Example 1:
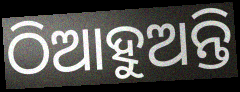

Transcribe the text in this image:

ଠିଆହୁଅନ୍ତି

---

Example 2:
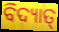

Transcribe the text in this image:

ବିଦ୍ୟାତ୍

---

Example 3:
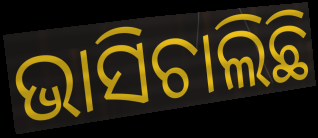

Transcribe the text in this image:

ଭାସିଚାଲିଛି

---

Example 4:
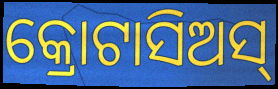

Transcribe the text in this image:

କ୍ରୋଟାସିଅସ୍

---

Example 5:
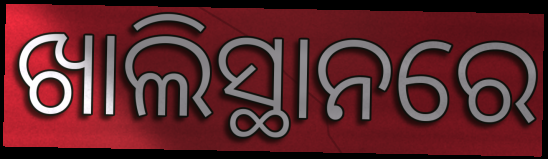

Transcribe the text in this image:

ଖାଲିସ୍ଥାନରେ